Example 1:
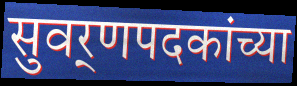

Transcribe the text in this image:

सुवर्णपदकांच्या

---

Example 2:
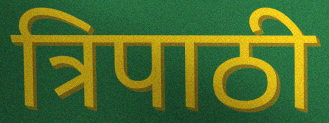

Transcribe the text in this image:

त्रिपाठी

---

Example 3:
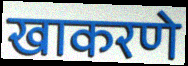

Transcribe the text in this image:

खाकरणे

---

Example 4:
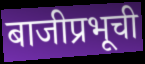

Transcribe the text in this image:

बाजीप्रभूची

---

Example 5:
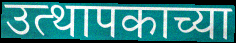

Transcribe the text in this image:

उत्थापकाच्या